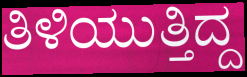
ತಿಳಿಯುತ್ತಿದ್ದ